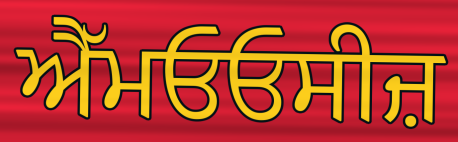
ਐੱਮਓਓਸੀਜ਼